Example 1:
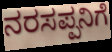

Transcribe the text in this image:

ನರಸಪ್ಪನಿಗೆ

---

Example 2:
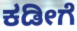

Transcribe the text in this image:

ಕಡೀಗೆ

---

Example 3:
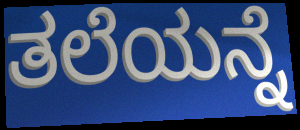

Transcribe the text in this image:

ತಲೆಯನ್ನೆ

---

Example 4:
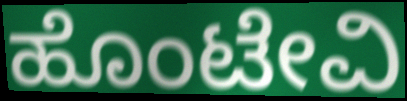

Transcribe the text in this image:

ಹೊಂಟೇವಿ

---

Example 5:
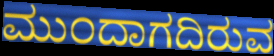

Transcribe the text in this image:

ಮುಂದಾಗದಿರುವ